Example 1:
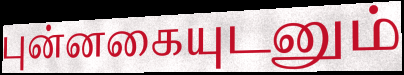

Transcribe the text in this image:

புன்னகையுடனும்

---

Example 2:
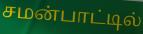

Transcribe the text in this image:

சமன்பாட்டில்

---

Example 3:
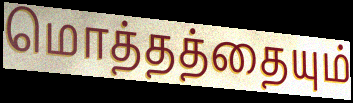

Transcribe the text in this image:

மொத்தத்தையும்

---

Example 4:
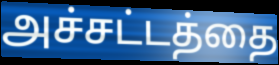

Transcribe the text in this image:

அச்சட்டத்தை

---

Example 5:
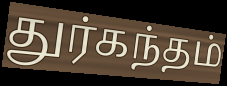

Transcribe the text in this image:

துர்கந்தம்